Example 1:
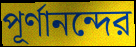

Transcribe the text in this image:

পূর্ণানন্দের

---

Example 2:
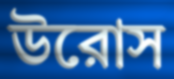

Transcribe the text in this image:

উরোস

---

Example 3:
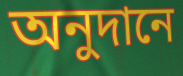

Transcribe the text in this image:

অনুদানে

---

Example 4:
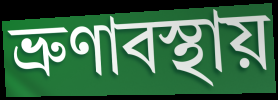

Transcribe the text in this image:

ভ্রুণাবস্থায়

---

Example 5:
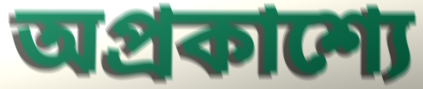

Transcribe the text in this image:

অপ্রকাশ্যে